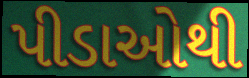
પીડાઓથી